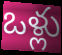
ఒళ్లు